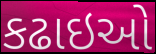
કઢાઇઓ